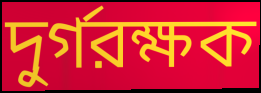
দুর্গরক্ষক